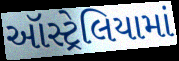
ઑસ્ટ્રેલિયામાં